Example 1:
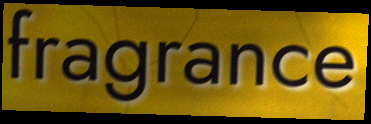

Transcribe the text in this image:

fragrance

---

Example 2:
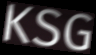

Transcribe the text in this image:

KSG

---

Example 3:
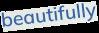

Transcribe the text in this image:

beautifully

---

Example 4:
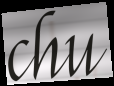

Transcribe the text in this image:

chu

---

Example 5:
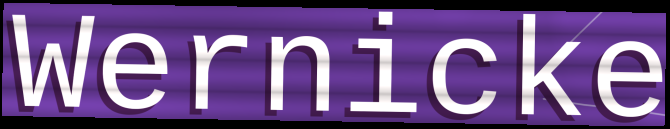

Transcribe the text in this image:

Wernicke